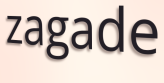
zagade